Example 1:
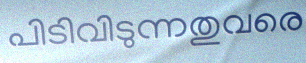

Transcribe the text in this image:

പിടിവിടുന്നതുവരെ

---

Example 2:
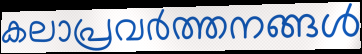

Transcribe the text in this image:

കലാപ്രവർത്തനങ്ങൾ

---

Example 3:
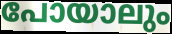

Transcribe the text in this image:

പോയാലും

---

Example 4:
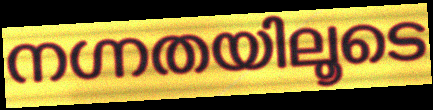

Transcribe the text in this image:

നഗ്നതയിലൂടെ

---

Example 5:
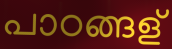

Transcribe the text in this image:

പാഠങ്ങള്